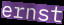
ernst